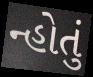
ન્હોતું